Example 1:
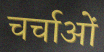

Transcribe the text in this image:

चर्चाओं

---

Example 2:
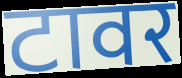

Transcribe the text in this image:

टावर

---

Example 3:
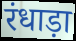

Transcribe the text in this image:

रंधाड़ा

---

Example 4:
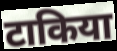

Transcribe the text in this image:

टाकिया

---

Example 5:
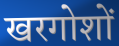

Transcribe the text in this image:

खरगोशों